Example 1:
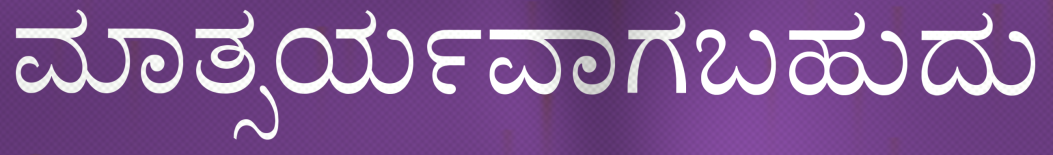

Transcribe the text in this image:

ಮಾತ್ಸರ್ಯವಾಗಬಹುದು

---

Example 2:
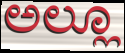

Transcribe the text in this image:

ಅಲ್ಲೂ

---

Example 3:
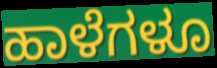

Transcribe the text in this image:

ಹಾಳೆಗಳೂ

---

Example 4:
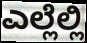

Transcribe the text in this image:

ಎಲ್ಲೆಲ್ಲಿ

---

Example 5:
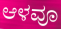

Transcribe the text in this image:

ಆಳವೂ